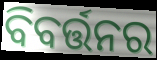
ବିବର୍ତ୍ତନର